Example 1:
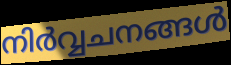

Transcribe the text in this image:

നിർവ്വചനങ്ങൾ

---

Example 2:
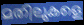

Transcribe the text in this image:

മതിലുകളെ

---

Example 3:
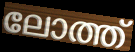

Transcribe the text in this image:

ലോത്ത്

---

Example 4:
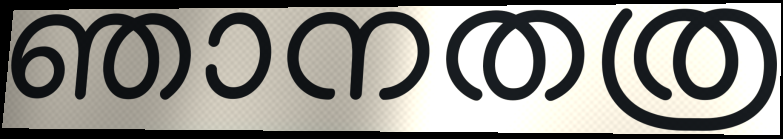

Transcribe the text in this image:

ഞാനതത്ര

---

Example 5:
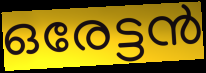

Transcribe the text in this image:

ഒരേട്ടൻ